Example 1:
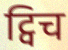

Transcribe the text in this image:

ट्विच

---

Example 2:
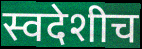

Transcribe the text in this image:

स्वदेशीच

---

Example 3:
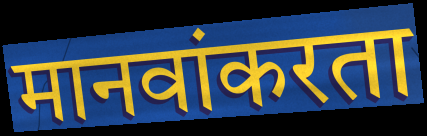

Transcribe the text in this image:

मानवांकरता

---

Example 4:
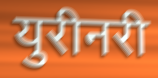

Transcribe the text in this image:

युरीनरी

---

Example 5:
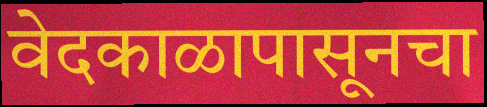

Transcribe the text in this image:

वेदकाळापासूनचा